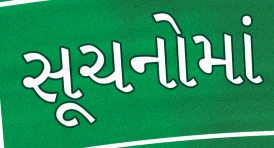
સૂચનોમાં